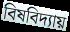
বিষবিদ্যায়